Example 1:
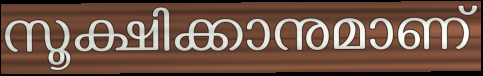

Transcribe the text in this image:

സൂക്ഷിക്കാനുമാണ്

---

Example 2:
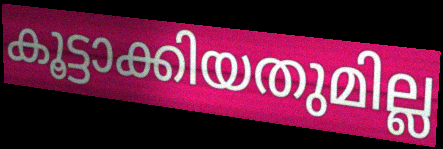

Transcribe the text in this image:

കൂട്ടാക്കിയതുമില്ല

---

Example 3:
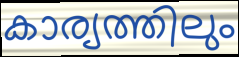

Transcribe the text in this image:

കാര്യത്തിലും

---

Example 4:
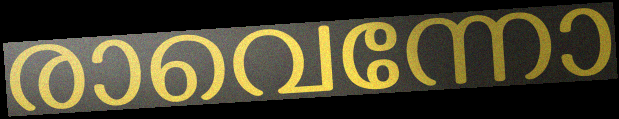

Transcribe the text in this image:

രാവെന്നോ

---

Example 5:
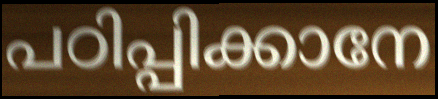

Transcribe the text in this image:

പഠിപ്പിക്കാനേ